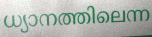
ധ്യാനത്തിലെന്ന